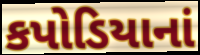
કપોડિયાનાં